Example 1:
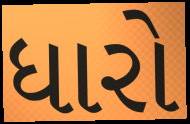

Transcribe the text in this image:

ધારો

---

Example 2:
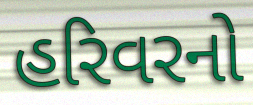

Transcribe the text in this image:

હરિવરનો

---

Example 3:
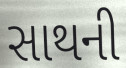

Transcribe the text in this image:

સાથની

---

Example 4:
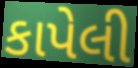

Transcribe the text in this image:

કાપેલી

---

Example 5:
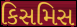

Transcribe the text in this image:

કિસમિસ